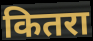
कितरा